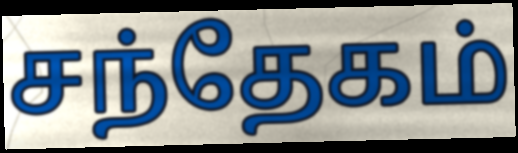
சந்தேகம்